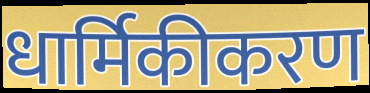
धार्मिकीकरण